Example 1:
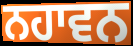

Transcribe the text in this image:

ਨਹਾਵਨ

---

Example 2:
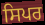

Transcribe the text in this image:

ਸਿਪਰ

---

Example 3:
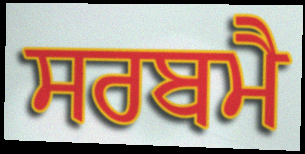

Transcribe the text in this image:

ਸਰਬਮੈ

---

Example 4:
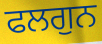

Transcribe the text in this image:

ਫਲਗੁਨ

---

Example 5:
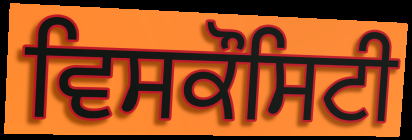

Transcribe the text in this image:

ਵਿਸਕੌਸਿਟੀ